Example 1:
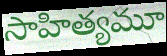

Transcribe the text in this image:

సాహిత్యమూ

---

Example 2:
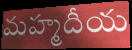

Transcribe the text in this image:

మహ్మదీయ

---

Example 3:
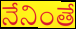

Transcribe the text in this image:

నేనింతే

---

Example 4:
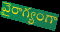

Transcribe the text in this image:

వైరాగ్యంగా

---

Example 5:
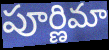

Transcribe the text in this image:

పూర్ణిమా